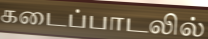
கடைப்பாடலில்